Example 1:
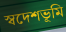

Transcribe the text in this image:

স্বদেশভূমি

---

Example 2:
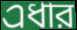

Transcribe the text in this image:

এধার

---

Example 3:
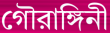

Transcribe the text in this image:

গৌরাঙ্গিনী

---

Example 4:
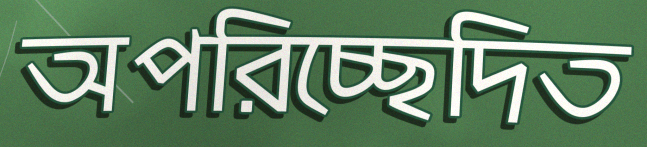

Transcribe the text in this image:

অপরিচ্ছেদিত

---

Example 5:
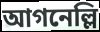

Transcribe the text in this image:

আগনেল্লি